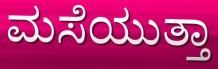
ಮಸೆಯುತ್ತಾ